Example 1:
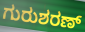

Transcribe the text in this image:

ಗುರುಶರಣ್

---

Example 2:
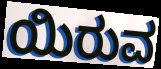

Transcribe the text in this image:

ಯಿರುವ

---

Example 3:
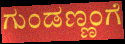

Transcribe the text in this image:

ಗುಂಡಣ್ಣಂಗೆ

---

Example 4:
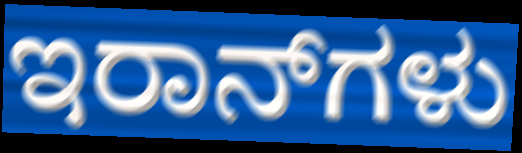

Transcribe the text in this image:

ಇರಾನ್‌ಗಳು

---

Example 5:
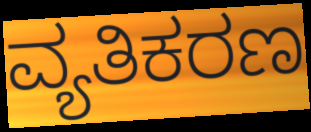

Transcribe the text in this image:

ವ್ಯತಿಕರಣ